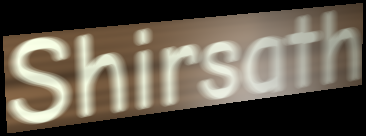
Shirsath